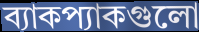
ব্যাকপ্যাকগুলো